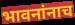
भावनांनाच